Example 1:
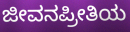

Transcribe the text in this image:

ಜೀವನಪ್ರೀತಿಯ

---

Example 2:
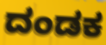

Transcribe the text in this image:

ದಂಡಕ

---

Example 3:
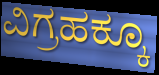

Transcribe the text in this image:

ವಿಗ್ರಹಕ್ಕೂ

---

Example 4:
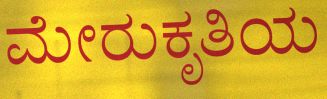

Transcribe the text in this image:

ಮೇರುಕೃತಿಯ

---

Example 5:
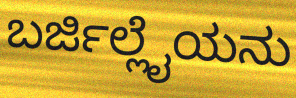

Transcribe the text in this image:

ಬರ್ಜಿಲ್ಲೈಯನು